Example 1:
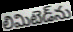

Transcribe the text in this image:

లిమిటెడ్‌ను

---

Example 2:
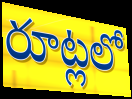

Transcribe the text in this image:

రూట్లలో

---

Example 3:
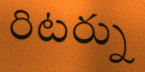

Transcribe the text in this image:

రిటర్ను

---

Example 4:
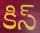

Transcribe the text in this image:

కిస్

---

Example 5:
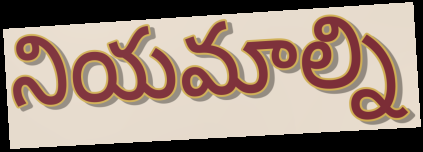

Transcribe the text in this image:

నియమాల్ని